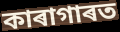
কাৰাগাৰত